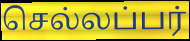
செல்லப்பர்